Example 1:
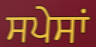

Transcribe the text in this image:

ਸਪੇਸਾਂ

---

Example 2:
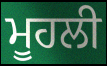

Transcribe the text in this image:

ਮੂਹਲੀ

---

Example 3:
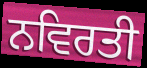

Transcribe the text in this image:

ਨਵਿਰਤੀ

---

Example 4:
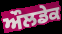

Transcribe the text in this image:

ਔਲਡੇਕ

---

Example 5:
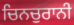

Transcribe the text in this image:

ਚਿਨਚੁਰਾਨੀ